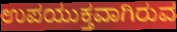
ಉಪಯುಕ್ತವಾಗಿರುವ